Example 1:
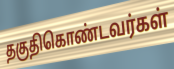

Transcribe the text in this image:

தகுதிகொண்டவர்கள்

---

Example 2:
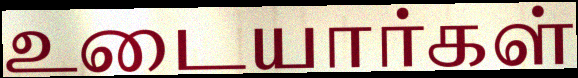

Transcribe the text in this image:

உடையார்கள்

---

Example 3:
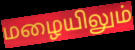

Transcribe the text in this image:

மழையிலும்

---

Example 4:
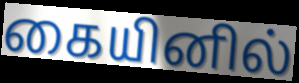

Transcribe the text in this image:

கையினில்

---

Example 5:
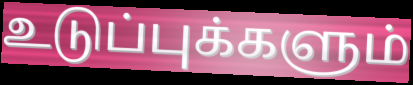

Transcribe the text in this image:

உடுப்புக்களும்